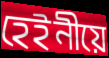
হেইনীয়ে